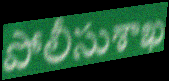
పోలీసుశాఖ